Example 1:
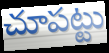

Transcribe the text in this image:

చూపట్టు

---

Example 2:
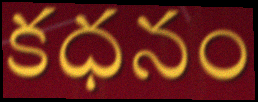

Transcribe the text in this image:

కధనం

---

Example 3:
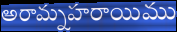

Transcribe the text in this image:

అరామ్నహరాయిము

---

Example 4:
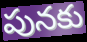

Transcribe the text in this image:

పునకు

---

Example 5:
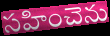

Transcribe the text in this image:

సహించెను